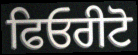
ਫਿਓਰੀਟੋ